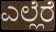
ಎಲ್ಲೆರೆ